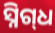
ସ୍ନିଗ୍‌ଧ